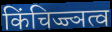
किंचिज्ज्ञत्व